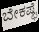
ಬೇಕಷ್ಟೆ